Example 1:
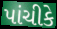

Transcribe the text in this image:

પાંચીકે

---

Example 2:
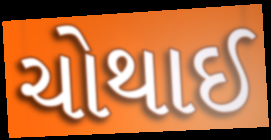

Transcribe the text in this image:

ચોથાઈ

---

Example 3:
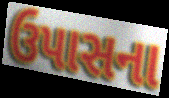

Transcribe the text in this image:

ઉપાસના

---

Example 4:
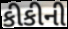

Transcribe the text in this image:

કીકીની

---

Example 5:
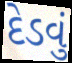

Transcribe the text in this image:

દેડવું